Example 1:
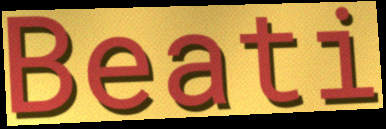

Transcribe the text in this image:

Beati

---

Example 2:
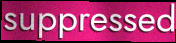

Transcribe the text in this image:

suppressed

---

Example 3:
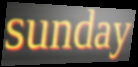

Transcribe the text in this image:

sunday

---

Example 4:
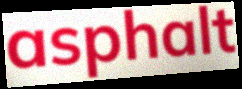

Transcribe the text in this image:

asphalt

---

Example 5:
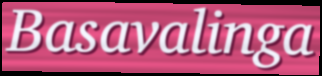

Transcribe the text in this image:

Basavalinga